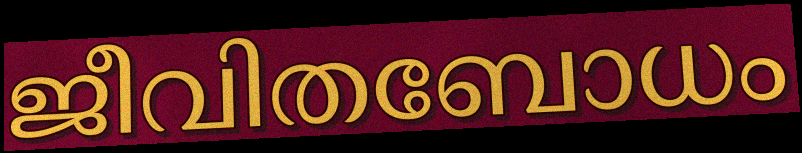
ജീവിതബോധം